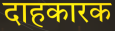
दाहकारक